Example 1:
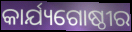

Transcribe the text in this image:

କାର୍ଯ୍ୟଗୋଷ୍ଠୀର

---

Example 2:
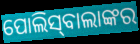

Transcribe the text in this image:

ପୋଲିସ୍‌ବାଲାଙ୍କର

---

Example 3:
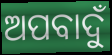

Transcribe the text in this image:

ଅପବାଦୁଁ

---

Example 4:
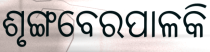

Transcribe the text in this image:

ଶୃଙ୍ଗବେରପାଳକି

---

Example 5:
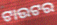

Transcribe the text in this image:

ଟାଉଟର